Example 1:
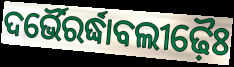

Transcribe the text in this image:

ଦର୍ଭୈରର୍ଦ୍ଧାବଲୀଢ଼ୈଃ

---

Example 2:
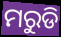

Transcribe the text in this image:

ମରୁଡି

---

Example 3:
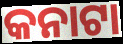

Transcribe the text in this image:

କନାଟା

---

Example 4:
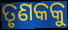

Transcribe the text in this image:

ତୃଣକକୁ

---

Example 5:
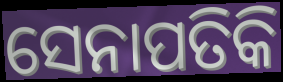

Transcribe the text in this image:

ସେନାପତିକି